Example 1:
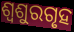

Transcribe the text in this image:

ଶ୍ୱଶୁରଗୃହ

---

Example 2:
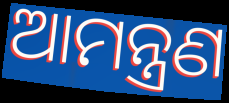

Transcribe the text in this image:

ଆମନ୍ତ୍ରଣ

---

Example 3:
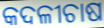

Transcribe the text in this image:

କଦଳୀଚାଷ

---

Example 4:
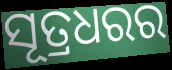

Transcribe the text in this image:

ସୂତ୍ରଧରର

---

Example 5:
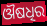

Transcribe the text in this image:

ଔଷଧିର